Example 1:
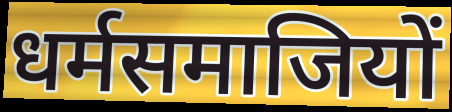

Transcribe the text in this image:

धर्मसमाजियों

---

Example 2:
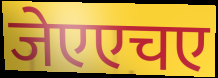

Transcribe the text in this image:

जेएएचए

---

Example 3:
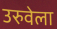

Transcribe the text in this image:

उरुवेला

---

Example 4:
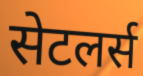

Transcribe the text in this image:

सेटलर्स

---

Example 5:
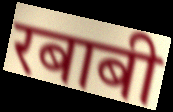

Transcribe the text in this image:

रबाबी